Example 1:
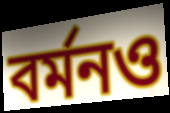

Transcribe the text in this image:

বর্মনও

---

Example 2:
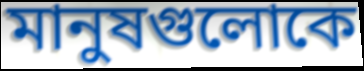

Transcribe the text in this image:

মানুষগুলোকে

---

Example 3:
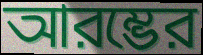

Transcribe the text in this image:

আরম্ভের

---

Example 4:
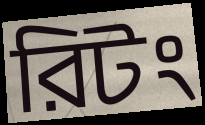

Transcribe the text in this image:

রিটং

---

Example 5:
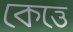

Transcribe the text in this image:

কেত্তে